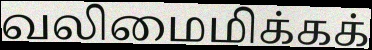
வலிமைமிக்கக்